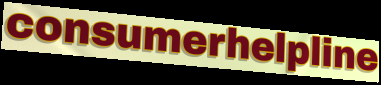
consumerhelpline